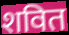
शवित